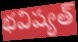
భవిష్యత్